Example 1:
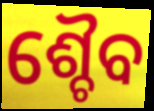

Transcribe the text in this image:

ଶ୍ଚୈବ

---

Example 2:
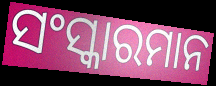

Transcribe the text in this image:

ସଂସ୍କାରମାନ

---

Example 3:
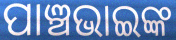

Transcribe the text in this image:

ପାଞ୍ଚଭାଇଙ୍କ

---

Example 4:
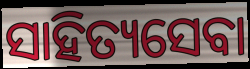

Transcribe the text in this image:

ସାହିତ୍ୟସେବା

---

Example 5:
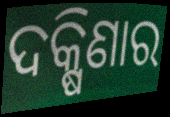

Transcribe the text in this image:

ଦକ୍ଷିଣାର